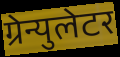
ग्रेन्युलेटर